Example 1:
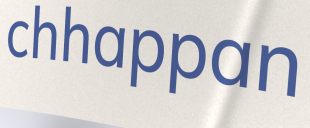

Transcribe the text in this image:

chhappan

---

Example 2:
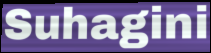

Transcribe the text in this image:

Suhagini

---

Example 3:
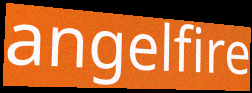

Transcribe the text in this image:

angelfire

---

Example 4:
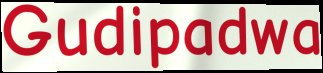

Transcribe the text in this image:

Gudipadwa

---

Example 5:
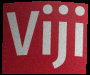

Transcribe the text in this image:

Viji